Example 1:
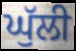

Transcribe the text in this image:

ਘੁੱਲੀ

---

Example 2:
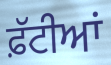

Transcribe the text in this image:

ਫ਼ੱਟੀਆਂ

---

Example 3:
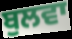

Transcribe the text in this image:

ਬੁਲਵਾ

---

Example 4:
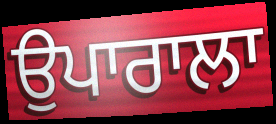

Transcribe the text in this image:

ਉਪਾਰਾਲਾ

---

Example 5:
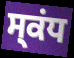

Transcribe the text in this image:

ਸ੍ਕਂਧ